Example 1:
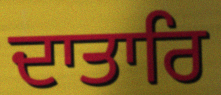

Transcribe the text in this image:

ਦਾਤਾਰਿ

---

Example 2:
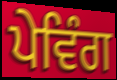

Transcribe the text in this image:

ਪੇਵਿੰਗ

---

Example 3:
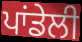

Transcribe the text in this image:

ਪਾਂਡੇਲੀ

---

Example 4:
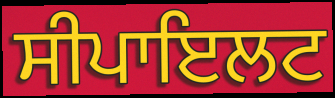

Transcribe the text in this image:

ਸੀਪਾਇਲਟ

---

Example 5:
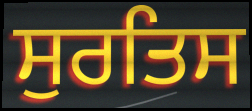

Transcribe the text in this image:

ਸੁਰਤਿਸ